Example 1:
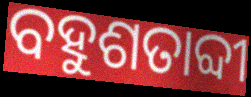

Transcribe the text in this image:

ବହୁଶତାବ୍ଦୀ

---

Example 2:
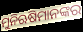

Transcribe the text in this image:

ମୁନିଋଷିମାନଙ୍କର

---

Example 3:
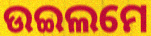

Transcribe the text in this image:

ଉଇଲମେ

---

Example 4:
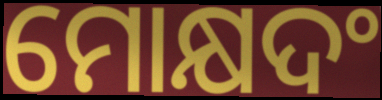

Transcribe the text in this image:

ମୋକ୍ଷଦଂ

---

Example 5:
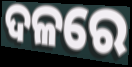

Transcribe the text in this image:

ଦଳରେ